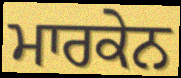
ਮਾਰਕੇਨ